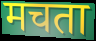
मचता